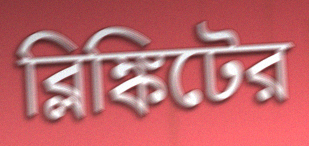
ব্লিঙ্কিটের